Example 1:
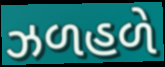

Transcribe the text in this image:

ઝળહળે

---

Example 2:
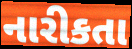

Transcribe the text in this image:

નારીકતા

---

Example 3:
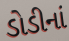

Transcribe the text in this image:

ડોડીનાં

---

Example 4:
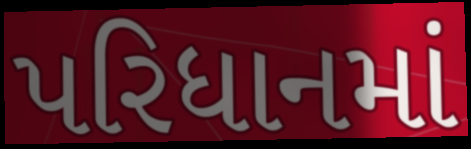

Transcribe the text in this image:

પરિધાનમાં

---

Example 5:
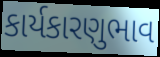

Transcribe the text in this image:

કાર્યકારણુભાવ